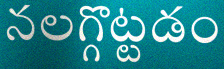
నలగ్గొట్టడం